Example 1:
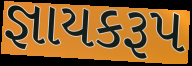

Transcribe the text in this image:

જ્ઞાયકરૂપ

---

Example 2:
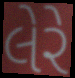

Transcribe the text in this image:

લેરે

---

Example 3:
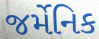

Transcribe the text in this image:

જર્મેનિક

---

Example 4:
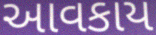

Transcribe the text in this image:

આવકાય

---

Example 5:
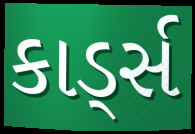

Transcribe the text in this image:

કાર્ડ્સ